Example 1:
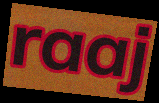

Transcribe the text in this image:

raaj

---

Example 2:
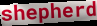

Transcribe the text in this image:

shepherd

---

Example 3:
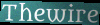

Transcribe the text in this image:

Thewire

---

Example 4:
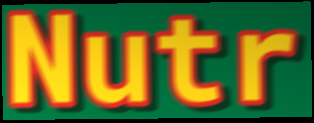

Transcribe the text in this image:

Nutr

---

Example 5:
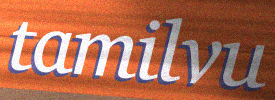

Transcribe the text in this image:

tamilvu